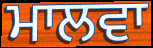
ਮਾਲਵਾ